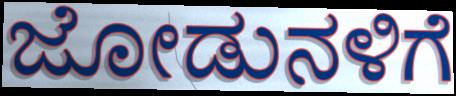
ಜೋಡುನಳಿಗೆ